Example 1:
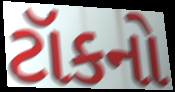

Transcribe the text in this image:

ટૉકનો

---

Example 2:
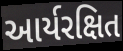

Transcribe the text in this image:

આર્યરક્ષિત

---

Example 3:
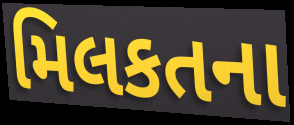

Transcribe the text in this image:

મિલકતના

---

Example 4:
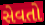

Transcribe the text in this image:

સેવતો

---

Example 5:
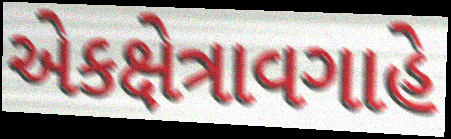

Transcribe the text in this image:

એકક્ષેત્રાવગાહે